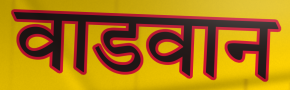
वाडवान